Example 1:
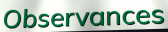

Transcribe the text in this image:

Observances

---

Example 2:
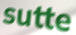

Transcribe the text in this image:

sutte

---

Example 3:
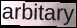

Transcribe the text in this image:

arbitary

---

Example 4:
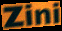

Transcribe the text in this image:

Zini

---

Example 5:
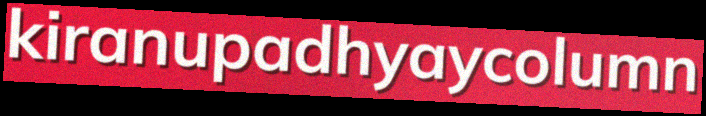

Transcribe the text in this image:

kiranupadhyaycolumn